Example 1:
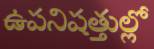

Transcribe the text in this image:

ఉపనిషత్తుల్లో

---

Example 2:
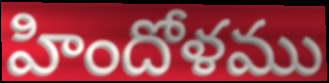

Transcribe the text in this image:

హిందోళము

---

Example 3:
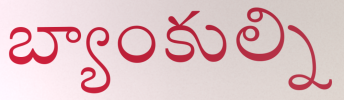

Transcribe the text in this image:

బ్యాంకుల్ని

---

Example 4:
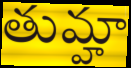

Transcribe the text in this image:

తుమ్హా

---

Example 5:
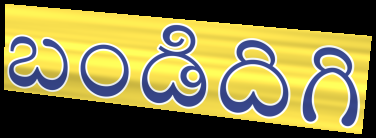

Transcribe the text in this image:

బండిదిగి